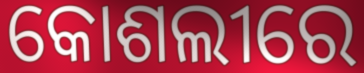
କୋଶଲୀରେ